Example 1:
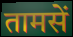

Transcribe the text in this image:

तामसें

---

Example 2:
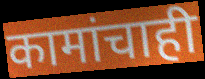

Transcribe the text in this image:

कामांचाही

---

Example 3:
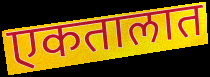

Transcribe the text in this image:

एकतालात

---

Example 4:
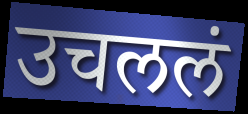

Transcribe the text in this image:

उचललं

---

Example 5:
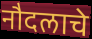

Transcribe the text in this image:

नौदलाचे